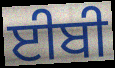
ਈਬੀ